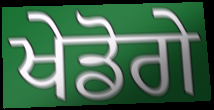
ਖੇਡੋਗੇ